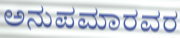
ಅನುಪಮಾರವರ